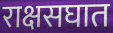
राक्षसघात